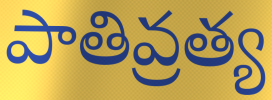
పాతివ్రత్య